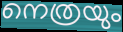
നെത്രയും